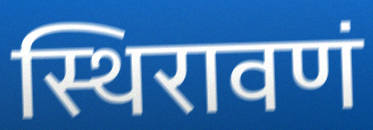
स्थिरावणं